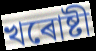
খৰোষ্টী